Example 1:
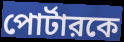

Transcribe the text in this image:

পোর্টারকে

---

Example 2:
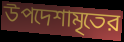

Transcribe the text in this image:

উপদেশামৃতের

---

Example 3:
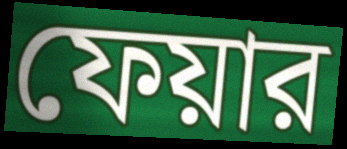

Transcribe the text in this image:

ফেয়ার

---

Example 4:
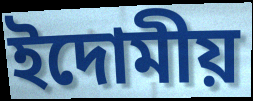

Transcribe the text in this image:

ইদোমীয়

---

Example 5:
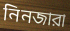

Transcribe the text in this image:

নিনজারা